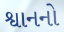
શ્વાનનો